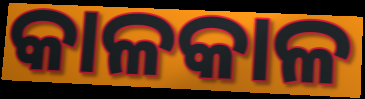
କାଳକାଳ